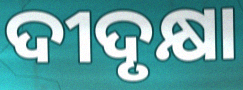
ଦୀଦୃକ୍ଷା